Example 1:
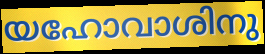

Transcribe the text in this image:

യഹോവാശിനു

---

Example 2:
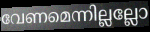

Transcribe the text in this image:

വേണമെന്നില്ലല്ലോ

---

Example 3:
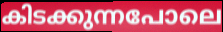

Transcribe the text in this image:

കിടക്കുന്നപോലെ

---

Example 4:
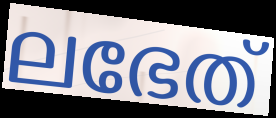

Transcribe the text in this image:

ലഭേത്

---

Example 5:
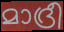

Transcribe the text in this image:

മാദ്രീ